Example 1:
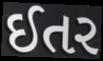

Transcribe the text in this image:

ઈતર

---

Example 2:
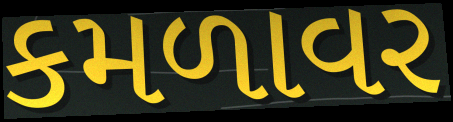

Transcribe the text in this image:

કમળાવર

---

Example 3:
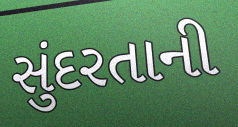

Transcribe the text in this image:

સુંદરતાની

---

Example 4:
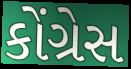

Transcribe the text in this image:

કોંગ્રેસ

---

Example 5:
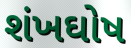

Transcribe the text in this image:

શંખઘોષ